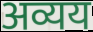
अव्यय